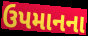
ઉપમાનના